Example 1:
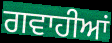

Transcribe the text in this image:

ਗਵਾਹੀਆਂ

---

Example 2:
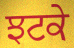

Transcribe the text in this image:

ਝਟਕੇ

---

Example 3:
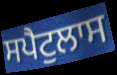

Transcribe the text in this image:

ਸਪੈਟੁਲਾਸ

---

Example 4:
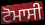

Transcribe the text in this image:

ਟੋਮਾਸੀ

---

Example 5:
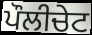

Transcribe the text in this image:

ਪੌਲੀਚੇਟ